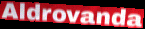
Aldrovanda